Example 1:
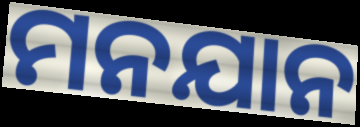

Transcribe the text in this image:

ମନଯାନ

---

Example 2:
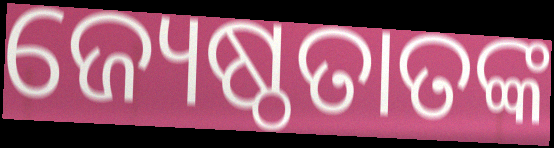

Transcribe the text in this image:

ଜ୍ୟେଷ୍ଠତାତଙ୍କ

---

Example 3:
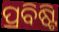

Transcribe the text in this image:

ପ୍ରବିଷ୍ଟି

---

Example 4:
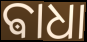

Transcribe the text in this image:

ଵାଧା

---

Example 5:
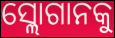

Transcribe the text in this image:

ସ୍ଲୋଗାନକୁ